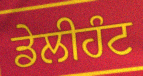
ਡੇਲੀਹੰਟ